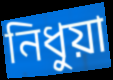
নিধুয়া